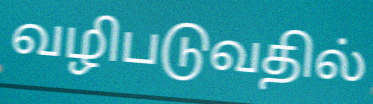
வழிபடுவதில்